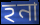
হনা